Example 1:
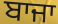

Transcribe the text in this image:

ਬਾਜਾ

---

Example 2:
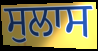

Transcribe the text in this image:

ਸੁਲਾਸ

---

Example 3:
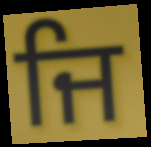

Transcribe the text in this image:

ਜਿ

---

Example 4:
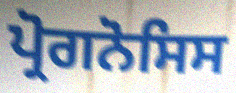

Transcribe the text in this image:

ਪ੍ਰੋਗਨੋਸਿਸ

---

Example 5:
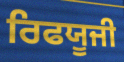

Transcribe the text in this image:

ਰਿਫਯੂਜੀ